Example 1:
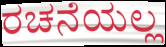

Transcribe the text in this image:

ರಚನೆಯಲ್ಲ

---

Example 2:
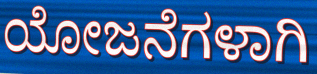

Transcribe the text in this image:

ಯೋಜನೆಗಳಾಗಿ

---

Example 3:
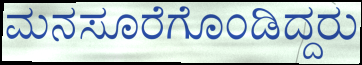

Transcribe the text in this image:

ಮನಸೂರೆಗೊಂಡಿದ್ದರು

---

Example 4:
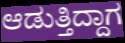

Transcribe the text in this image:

ಆಡುತ್ತಿದ್ದಾಗ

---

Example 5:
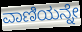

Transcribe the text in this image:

ವಾಣಿಯನ್ನೇ